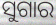
ସୁଗାର